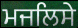
ਮਜਲਿਸੇ